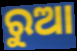
ରୁଆ